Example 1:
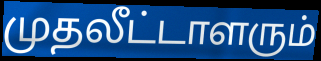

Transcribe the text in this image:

முதலீட்டாளரும்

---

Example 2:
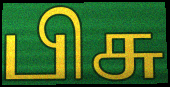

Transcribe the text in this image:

பிசு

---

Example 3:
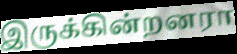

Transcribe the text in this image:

இருக்கின்றனரா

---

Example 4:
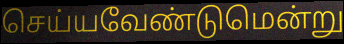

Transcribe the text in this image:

செய்யவேண்டுமென்று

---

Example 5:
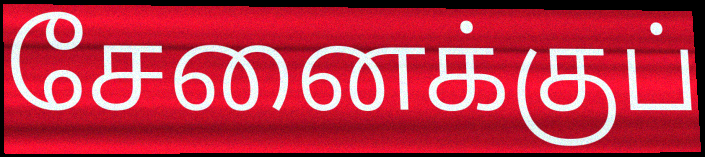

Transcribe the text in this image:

சேனைக்குப்